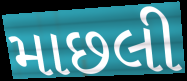
માછલી